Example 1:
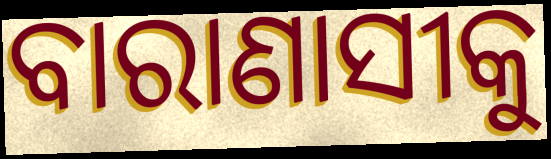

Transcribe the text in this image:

ବାରାଣାସୀକୁ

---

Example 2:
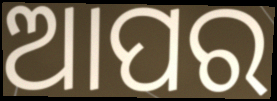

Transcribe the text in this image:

ଆପର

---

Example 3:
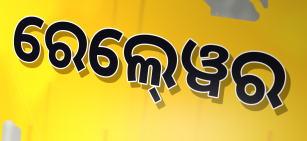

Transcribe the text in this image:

ରେଲ୍‍ୱେର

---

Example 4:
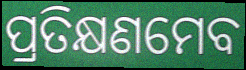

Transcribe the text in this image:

ପ୍ରତିକ୍ଷଣମେବ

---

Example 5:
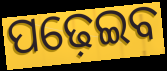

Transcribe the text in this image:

ପଢ଼େଇବ